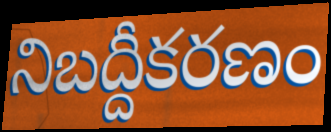
నిబద్దీకరణం